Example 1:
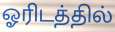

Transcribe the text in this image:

ஓரிடத்தில்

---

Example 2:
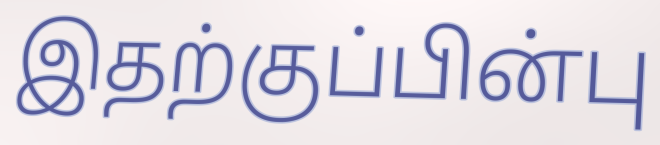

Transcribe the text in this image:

இதற்குப்பின்பு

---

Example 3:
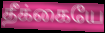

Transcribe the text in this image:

தீக்கையே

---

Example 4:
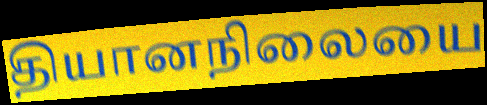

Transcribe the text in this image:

தியானநிலையை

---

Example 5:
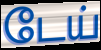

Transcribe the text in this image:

டேய்